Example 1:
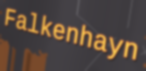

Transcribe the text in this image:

Falkenhayn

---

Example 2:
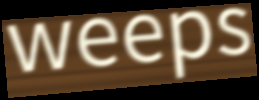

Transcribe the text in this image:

weeps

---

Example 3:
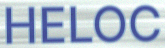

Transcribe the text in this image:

HELOC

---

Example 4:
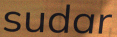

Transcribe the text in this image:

sudar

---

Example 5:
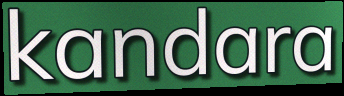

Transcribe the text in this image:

kandara